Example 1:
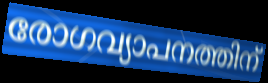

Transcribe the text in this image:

രോഗവ്യാപനത്തിന്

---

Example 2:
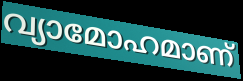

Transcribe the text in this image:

വ്യാമോഹമാണ്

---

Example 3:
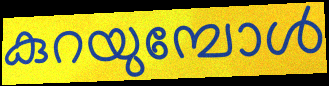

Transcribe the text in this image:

കുറയുമ്പോൾ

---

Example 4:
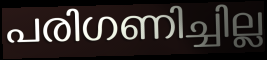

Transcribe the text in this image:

പരിഗണിച്ചില്ല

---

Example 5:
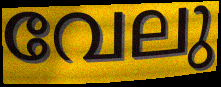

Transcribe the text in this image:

വേലു